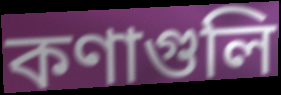
কণাগুলি